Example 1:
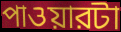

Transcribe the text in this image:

পাওয়ারটা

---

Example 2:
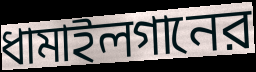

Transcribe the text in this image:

ধামাইলগানের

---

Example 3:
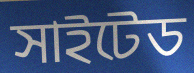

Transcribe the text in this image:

সাইটেড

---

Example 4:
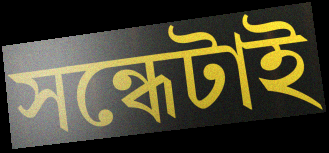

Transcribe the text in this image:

সন্ধেটাই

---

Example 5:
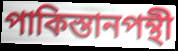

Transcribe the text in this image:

পাকিস্তানপন্থী